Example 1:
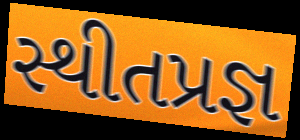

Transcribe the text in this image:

સ્થીતપ્રજ્ઞ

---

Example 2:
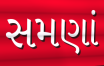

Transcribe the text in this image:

સમણાં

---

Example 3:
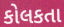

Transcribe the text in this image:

કોલકતા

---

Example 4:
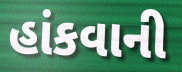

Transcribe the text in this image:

હાંકવાની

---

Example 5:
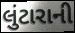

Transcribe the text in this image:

લુંટારાની